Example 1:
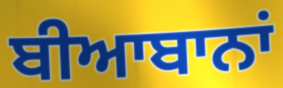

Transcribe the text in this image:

ਬੀਆਬਾਨਾਂ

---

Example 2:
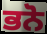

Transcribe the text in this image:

ਭਨੋ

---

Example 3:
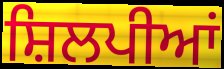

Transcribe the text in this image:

ਸ਼ਿਲਪੀਆਂ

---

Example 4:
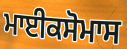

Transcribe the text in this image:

ਮਾਈਕਸੋਮਾਸ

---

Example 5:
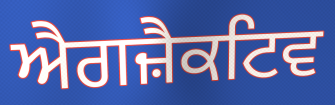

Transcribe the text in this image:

ਐਗਜ਼ੈਕਟਿਵ